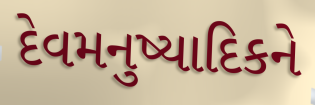
દેવમનુષ્યાદિકને